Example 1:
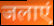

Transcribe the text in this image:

जलाएं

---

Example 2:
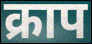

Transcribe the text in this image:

क्राप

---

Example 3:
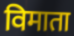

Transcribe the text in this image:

विमाता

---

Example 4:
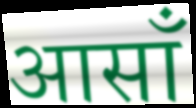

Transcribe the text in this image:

आसाँ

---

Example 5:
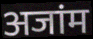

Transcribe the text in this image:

अजांम